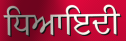
ਧਿਆਇਦੀ